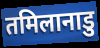
तमिलानाडु